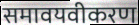
समावयवीकरण